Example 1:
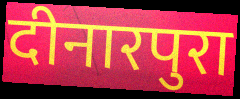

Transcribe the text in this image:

दीनारपुरा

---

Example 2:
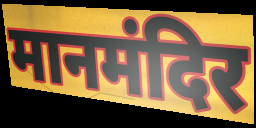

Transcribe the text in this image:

मानमंदिर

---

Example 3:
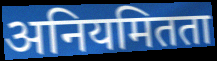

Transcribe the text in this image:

अनियमितता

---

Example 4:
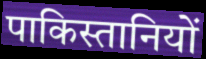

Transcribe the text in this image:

पाकिस्तानियों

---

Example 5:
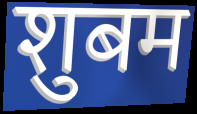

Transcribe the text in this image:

शुबम